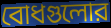
বোধগুলোর